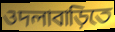
ওদলাবাড়িতে